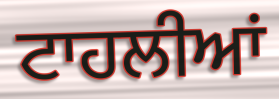
ਟਾਹਲੀਆਂ